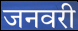
जनवरी